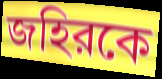
জহিরকে